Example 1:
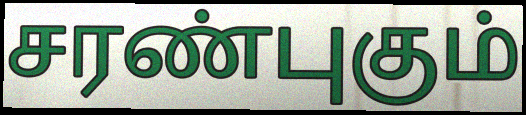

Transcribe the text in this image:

சரண்புகும்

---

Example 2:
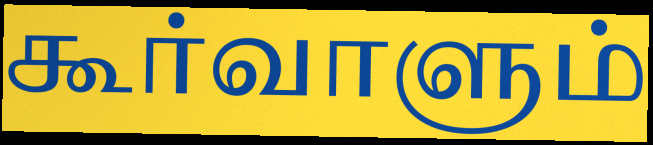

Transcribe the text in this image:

கூர்வாளும்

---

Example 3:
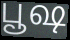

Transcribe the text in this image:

பூஷ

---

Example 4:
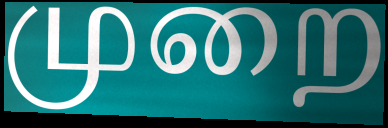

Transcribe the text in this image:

முறை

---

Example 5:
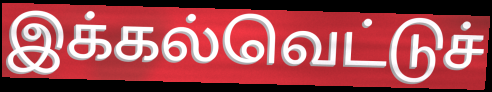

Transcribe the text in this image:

இக்கல்வெட்டுச்